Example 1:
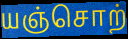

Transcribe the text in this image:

யஞ்சொற்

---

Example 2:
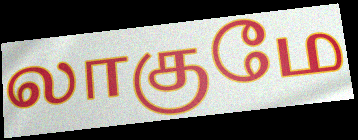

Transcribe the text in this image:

லாகுமே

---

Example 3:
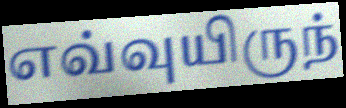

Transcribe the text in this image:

எவ்வுயிருந்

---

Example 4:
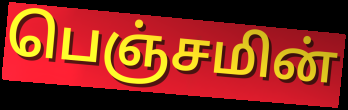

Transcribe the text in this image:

பெஞ்சமின்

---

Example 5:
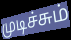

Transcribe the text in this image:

முடிச்சும்